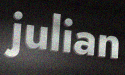
julian